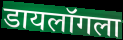
डायलॉगला